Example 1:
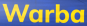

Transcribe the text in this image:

Warba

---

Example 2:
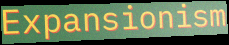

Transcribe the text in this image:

Expansionism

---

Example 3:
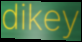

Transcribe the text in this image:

dikey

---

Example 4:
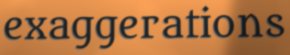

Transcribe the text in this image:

exaggerations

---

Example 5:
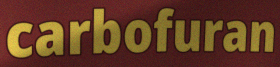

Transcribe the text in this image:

carbofuran